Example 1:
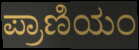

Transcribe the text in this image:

ಪ್ರಾಣಿಯಂ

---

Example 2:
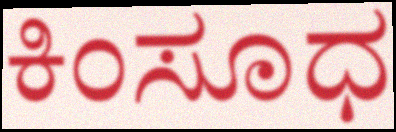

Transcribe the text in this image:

ಕಿಂಸೂಧ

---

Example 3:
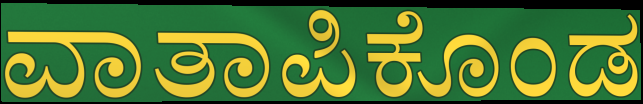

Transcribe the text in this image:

ವಾತಾಪಿಕೊಂಡ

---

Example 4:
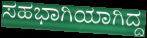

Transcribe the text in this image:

ಸಹಭಾಗಿಯಾಗಿದ್ದ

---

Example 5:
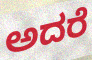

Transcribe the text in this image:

ಅದರೆ